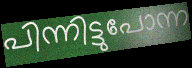
പിന്നിട്ടുപോന്ന